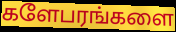
களேபரங்களை